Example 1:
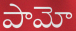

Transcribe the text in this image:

పామో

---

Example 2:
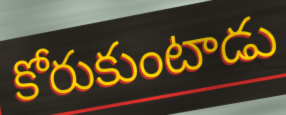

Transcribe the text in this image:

కోరుకుంటాడు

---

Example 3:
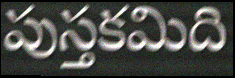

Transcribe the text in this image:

పుస్తకమిది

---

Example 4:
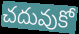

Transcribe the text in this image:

చదువుకో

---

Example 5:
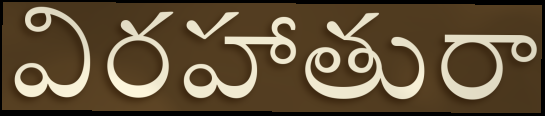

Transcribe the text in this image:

విరహాతురా